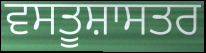
ਵਸਤੂਸ਼ਾਸਤਰ